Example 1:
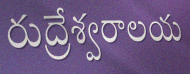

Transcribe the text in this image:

రుద్రేశ్వరాలయ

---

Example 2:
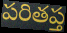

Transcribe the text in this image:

పరితప్త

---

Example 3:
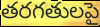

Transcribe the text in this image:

తరగతులపై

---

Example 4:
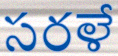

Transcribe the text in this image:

సరళే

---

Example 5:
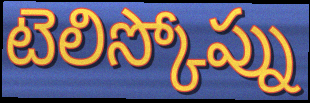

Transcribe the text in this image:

టెలిస్కోప్ను